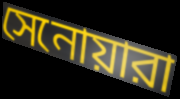
সেনোয়ারা